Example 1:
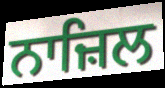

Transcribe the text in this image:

ਨਾਜ਼ਿਲ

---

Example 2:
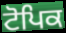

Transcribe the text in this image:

ਟੋਪਿਕ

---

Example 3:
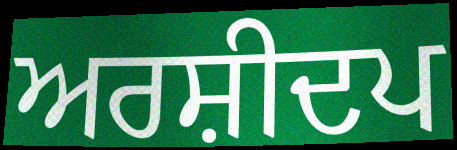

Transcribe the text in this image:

ਅਰਸ਼ੀਦਪ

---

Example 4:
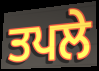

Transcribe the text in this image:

ਤਪਲੇ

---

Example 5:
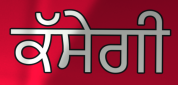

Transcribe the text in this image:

ਕੱਸੇਗੀ